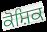
ਕੋਸ਼ਿਕ